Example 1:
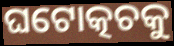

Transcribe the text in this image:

ଘଟୋତ୍କଚକୁ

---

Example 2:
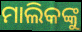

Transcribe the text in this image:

ମାଲିକଙ୍କୁ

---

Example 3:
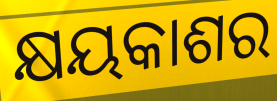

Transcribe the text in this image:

କ୍ଷୟକାଶର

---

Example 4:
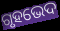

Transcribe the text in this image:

ଗୃହଭେଦ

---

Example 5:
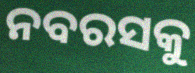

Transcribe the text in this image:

ନବରସକୁ